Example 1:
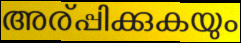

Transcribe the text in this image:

അര്പ്പിക്കുകയും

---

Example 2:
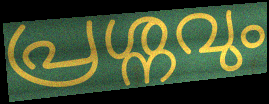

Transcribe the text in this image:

പ്രശ്നവും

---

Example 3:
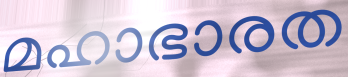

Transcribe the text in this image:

മഹാഭാരത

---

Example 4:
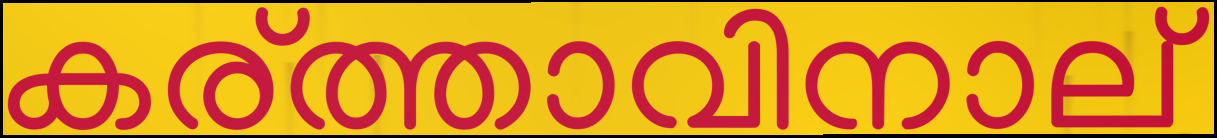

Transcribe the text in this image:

കര്ത്താവിനാല്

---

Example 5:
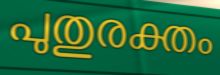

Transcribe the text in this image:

പുതുരക്തം